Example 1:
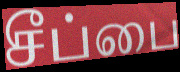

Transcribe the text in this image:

சீப்பை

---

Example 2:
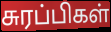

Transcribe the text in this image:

சுரப்பிகள்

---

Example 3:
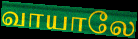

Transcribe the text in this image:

வாயாலே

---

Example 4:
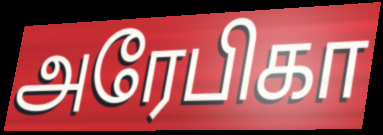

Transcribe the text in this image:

அரேபிகா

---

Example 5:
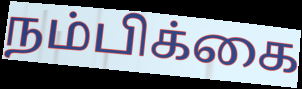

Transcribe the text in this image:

நம்பிக்கை